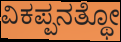
ವಿಕಪ್ಪನತ್ಥೋ